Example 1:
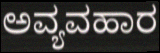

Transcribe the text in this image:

ಅವ್ಯವಹಾರ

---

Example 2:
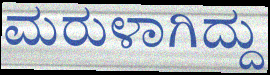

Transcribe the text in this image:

ಮರುಳಾಗಿದ್ದು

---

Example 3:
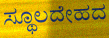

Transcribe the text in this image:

ಸ್ಥೂಲದೇಹದ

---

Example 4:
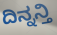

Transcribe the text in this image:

ದಿನ್ನನ್ತಿ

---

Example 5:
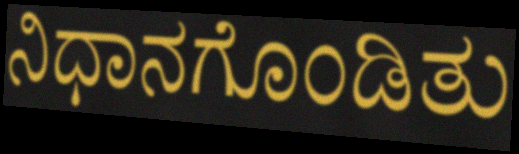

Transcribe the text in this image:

ನಿಧಾನಗೊಂಡಿತು